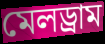
মেলড্রাম